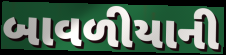
બાવળીયાની